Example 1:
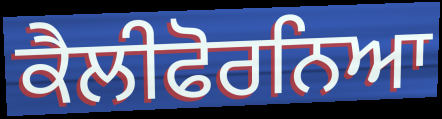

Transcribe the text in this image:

ਕੈਲੀਫੋਰਨਿਆ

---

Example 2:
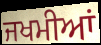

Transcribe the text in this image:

ਜਖਮੀਆਂ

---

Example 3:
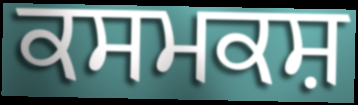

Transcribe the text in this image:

ਕਸਮਕਸ਼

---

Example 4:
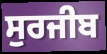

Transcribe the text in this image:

ਸੁਰਜੀਬ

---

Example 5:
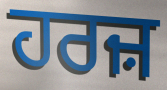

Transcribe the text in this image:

ਹਰਜ਼